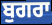
ਬੁਗਰਾ